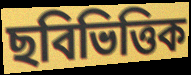
ছবিভিত্তিক